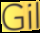
Gil